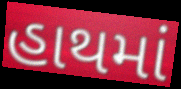
હાથમાં